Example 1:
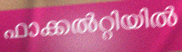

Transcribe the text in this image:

ഫാക്കൽറ്റിയിൽ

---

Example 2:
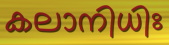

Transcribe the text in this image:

കലാനിധിഃ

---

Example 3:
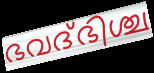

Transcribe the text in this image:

ഭവദ്ഭിശ്ച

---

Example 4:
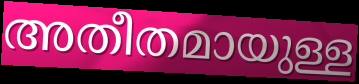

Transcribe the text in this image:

അതീതമായുള്ള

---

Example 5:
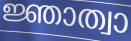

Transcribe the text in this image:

ജ്ഞാത്വാ